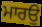
ਮਾਰਉ